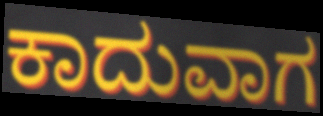
ಕಾದುವಾಗ